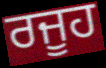
ਰਜੂਹ